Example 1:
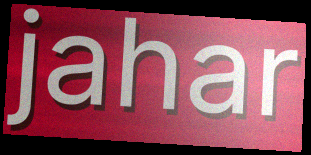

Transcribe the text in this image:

jahar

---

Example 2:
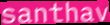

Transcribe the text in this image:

santhav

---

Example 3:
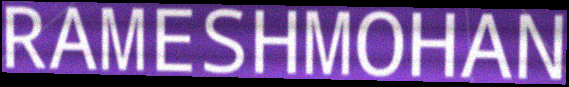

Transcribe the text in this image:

RAMESHMOHAN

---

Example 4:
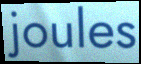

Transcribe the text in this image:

joules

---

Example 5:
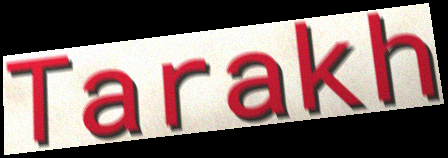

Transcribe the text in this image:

Tarakh